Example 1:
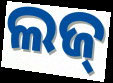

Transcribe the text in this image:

ଲଜ୍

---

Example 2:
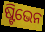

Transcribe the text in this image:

ଷ୍ଟିଭେନ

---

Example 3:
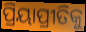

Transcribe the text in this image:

ପ୍ରିୟାପ୍ରୀତିକୁ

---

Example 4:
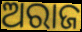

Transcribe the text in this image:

ଅରାଜ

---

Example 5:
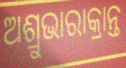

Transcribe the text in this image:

ଅଶ୍ରୁଭାରାକ୍ରାନ୍ତ